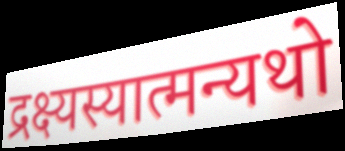
द्रक्ष्यस्यात्मन्यथो